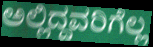
ಅಲ್ಲಿದ್ದವರಿಗೆಲ್ಲ